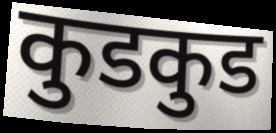
कुडकुड